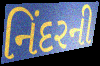
નિંદરની